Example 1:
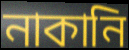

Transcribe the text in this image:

নাকানি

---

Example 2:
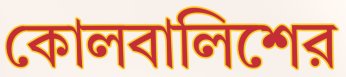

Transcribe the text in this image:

কোলবালিশের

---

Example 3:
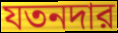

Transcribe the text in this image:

যতনদার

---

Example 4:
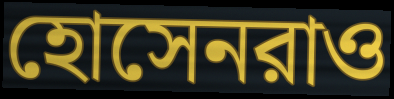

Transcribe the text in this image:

হোসেনরাও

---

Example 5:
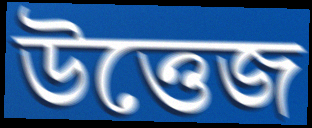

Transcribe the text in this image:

উত্তেজ